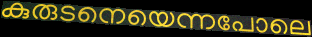
കുരുടനെയെന്നപോലെ